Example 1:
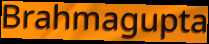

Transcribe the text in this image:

Brahmagupta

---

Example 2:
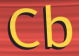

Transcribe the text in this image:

Cb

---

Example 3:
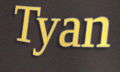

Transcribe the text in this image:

Tyan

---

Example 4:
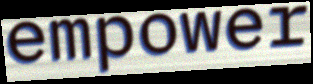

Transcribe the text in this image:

empower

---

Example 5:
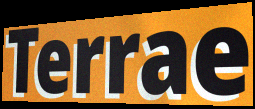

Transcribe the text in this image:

Terrae